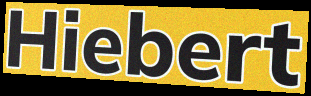
Hiebert